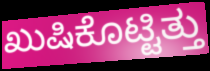
ಖುಷಿಕೊಟ್ಟಿತ್ತು